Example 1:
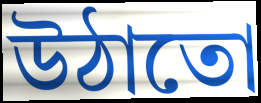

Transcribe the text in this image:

উঠাতো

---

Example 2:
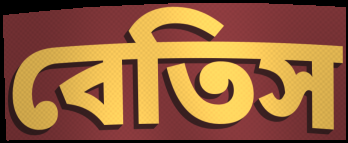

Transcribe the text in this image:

বেতিস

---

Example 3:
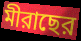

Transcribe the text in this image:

মীরাছের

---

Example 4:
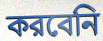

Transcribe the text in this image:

করবেনি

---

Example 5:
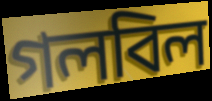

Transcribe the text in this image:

গলবিল